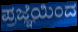
ಪ್ರಜ್ಞೆಯಿಂದ